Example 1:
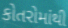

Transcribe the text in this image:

કોતરોમાંથી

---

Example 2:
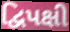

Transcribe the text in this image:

દ્વિપક્ષી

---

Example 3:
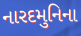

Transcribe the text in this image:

નારદમુનિના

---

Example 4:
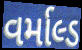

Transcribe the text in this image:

વર્માલ્ડ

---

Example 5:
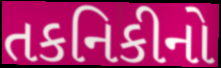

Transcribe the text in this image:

તકનિકીનો